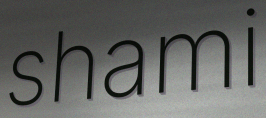
shami